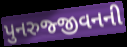
પુનરુજ્જીવનની